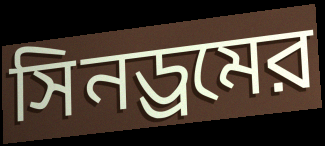
সিনড্রমের